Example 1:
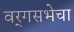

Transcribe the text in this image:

वर्गसभेचा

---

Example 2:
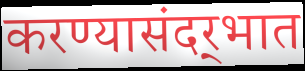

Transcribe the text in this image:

करण्यासंदर्भात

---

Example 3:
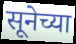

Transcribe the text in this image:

सूनेच्या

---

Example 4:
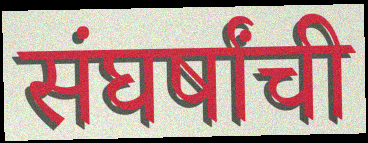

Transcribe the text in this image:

संघर्षांची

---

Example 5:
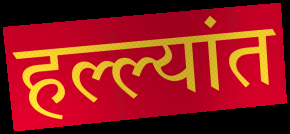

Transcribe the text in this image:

हल्ल्यांत